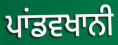
ਪਾਂਡਵਖਾਨੀ